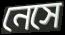
নেসে